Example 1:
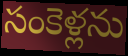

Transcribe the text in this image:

సంకెళ్లను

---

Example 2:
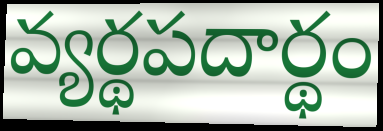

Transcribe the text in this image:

వ్యర్థపదార్థం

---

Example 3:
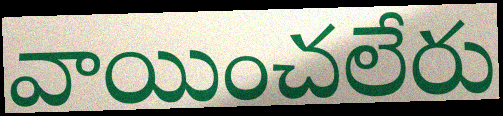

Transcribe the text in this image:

వాయించలేరు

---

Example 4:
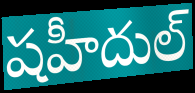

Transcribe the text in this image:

షహీదుల్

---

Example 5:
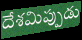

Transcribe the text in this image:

దేశమిప్పుడు